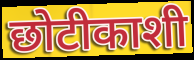
छोटीकाशी